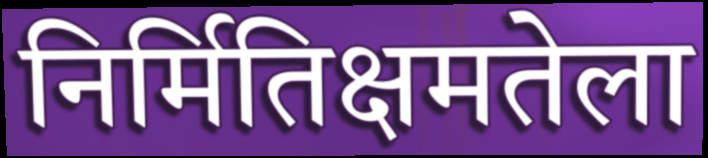
निर्मितिक्षमतेला